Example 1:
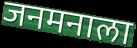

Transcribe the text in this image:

जनमनाला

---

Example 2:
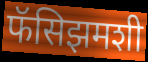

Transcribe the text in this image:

फॅसिझमशी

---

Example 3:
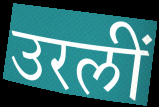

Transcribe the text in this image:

उरलीं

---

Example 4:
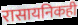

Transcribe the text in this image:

रासायनिकही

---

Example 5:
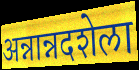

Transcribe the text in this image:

अन्नान्नदशेला